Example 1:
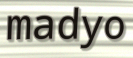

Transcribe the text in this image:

madyo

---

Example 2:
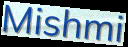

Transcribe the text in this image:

Mishmi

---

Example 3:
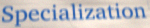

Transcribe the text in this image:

Specialization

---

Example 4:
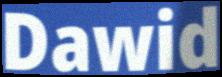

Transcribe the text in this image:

Dawid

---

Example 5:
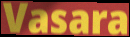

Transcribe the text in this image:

Vasara